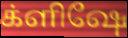
க்ளிஷே